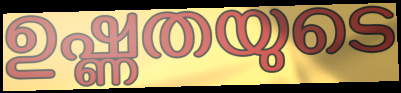
ഉഷ്ണതയുടെ